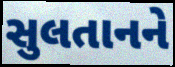
સુલતાનને